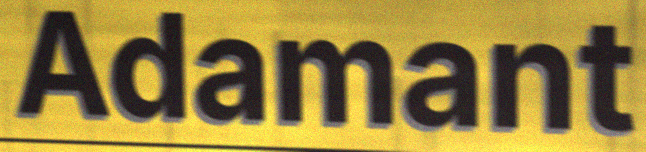
Adamant